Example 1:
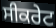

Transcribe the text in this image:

ਸੀਕਰੇਟ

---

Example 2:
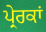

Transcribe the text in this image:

ਪ੍ਰੇਰਕਾਂ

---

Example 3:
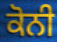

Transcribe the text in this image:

ਕੋਨੀ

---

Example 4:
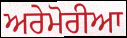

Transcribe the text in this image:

ਅਰੇਮੋਰੀਆ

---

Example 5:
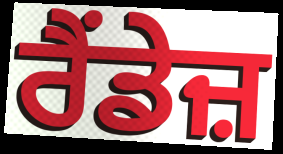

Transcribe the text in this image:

ਰੈਂਡੇਜ਼